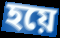
হয়ে